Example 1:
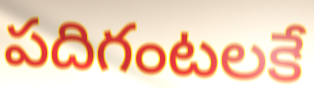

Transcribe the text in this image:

పదిగంటలకే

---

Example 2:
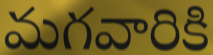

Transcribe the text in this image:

మగవారికి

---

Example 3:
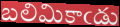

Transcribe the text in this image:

బలిమికాఁడు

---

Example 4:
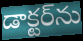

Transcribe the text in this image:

డాక్టర్‌ను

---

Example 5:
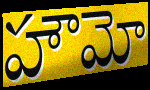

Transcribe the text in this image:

హౌమో